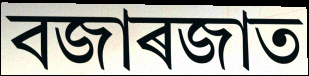
বজাৰজাত